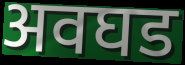
अवघड